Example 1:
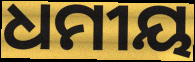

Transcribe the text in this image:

ଧମୀୟ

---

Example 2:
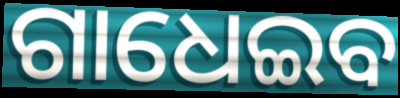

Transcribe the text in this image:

ଗାଧେଇବ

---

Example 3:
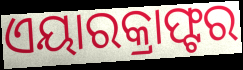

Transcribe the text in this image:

ଏୟାରକ୍ରାଫ୍ଟର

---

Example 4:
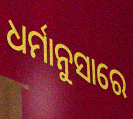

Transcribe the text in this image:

ଧର୍ମାନୁସାରେ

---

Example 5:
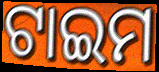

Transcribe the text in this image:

ଟାଇମ